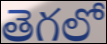
తెగలో